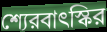
শ্যেরবাৎস্কির